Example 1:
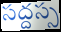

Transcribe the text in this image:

సద్దస్స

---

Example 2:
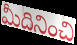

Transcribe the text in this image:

మీదినించి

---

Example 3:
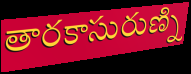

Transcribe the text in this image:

తారకాసురుణ్ని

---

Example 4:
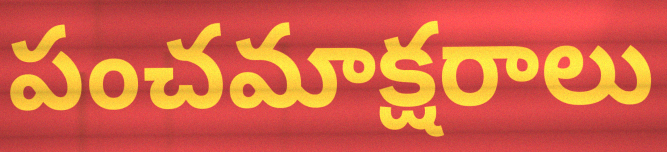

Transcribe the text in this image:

పంచమాక్షరాలు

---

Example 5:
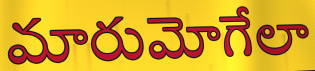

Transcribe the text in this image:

మారుమోగేలా